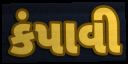
કંપાવી